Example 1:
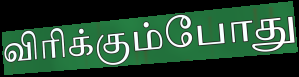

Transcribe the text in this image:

விரிக்கும்போது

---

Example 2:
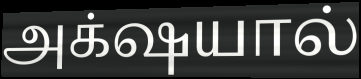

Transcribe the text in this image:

அக்‌ஷயால்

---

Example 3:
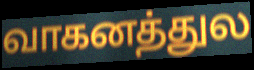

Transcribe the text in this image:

வாகனத்துல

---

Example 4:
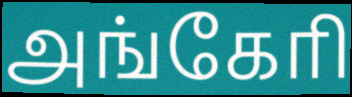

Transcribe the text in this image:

அங்கேரி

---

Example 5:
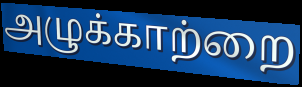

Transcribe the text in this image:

அழுக்காற்றை